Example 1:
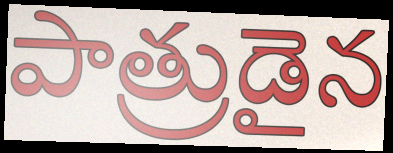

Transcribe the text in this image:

పాత్రుడైన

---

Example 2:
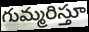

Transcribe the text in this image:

గుమ్మరిస్తూ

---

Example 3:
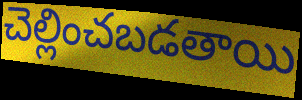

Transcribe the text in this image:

చెల్లించబడతాయి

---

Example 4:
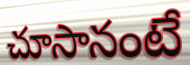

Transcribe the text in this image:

చూసానంటే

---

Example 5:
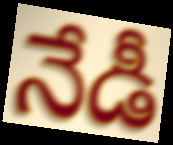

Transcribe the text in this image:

నేడీ